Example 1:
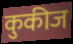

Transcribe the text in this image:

कुकीज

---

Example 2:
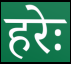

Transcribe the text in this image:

हरेः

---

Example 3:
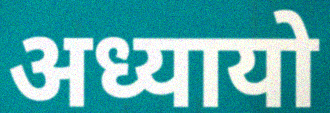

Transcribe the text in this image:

अध्यायो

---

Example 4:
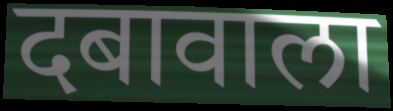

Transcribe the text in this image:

दबावाला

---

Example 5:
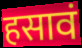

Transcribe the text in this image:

हसावं